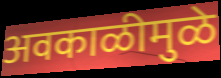
अवकाळीमुळे